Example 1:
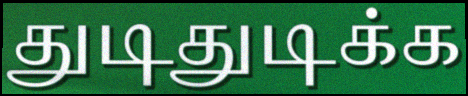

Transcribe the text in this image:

துடிதுடிக்க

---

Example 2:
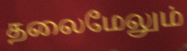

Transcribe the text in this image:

தலைமேலும்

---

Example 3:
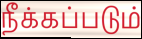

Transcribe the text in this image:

நீக்கப்படும்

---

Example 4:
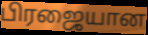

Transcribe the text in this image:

பிரஜையான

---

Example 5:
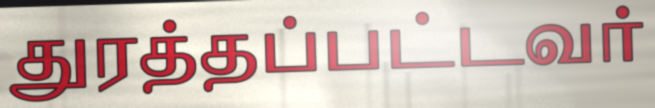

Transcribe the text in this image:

துரத்தப்பட்டவர்